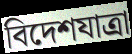
বিদেশযাত্রা